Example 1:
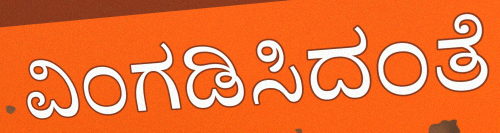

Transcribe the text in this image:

ವಿಂಗಡಿಸಿದಂತೆ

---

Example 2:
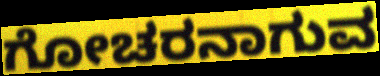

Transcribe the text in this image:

ಗೋಚರನಾಗುವ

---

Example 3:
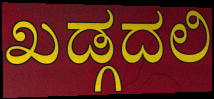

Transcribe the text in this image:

ಖಡ್ಗದಲಿ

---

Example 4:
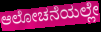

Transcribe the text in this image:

ಆಲೋಚನೆಯಲ್ಲೇ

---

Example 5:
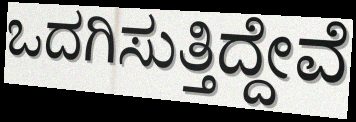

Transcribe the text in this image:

ಒದಗಿಸುತ್ತಿದ್ದೇವೆ